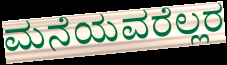
ಮನೆಯವರೆಲ್ಲರ